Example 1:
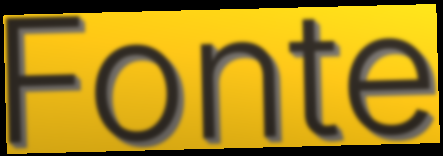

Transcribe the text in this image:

Fonte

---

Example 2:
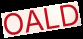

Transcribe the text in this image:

OALD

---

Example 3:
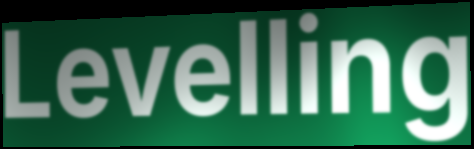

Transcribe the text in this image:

Levelling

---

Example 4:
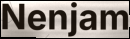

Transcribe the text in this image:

Nenjam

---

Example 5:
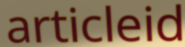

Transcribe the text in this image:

articleid